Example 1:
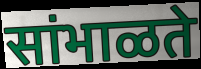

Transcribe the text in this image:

सांभाळते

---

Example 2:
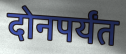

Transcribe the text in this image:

दोनपर्यंत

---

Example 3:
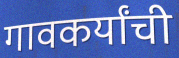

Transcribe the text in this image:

गावकर्यांची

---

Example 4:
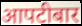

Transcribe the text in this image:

आपटीबार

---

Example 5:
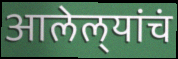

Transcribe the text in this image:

आलेल्यांचं